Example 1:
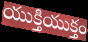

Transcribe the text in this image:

యుక్తియుక్తం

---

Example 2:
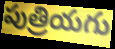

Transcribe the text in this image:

పుత్రియగు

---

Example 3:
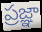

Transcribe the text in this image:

ప్రజ్ఞా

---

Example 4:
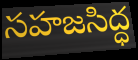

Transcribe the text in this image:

సహజసిద్ధ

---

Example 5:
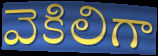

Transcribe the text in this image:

వెకిలిగా